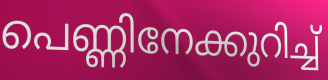
പെണ്ണിനേക്കുറിച്ച്